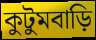
কুটুমবাড়ি